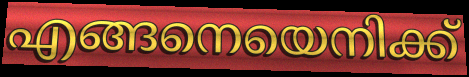
എങ്ങനെയെനിക്ക്